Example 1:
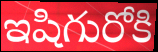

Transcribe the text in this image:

ఇషిగురోకి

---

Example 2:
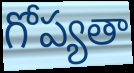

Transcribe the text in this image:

గోప్యతా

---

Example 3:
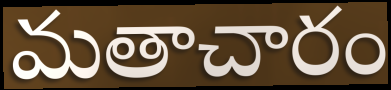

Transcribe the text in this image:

మతాచారం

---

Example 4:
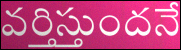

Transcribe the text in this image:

వర్తిస్తుందనే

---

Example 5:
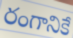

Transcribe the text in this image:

రంగానికే